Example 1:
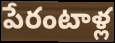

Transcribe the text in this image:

పేరంటాళ్ల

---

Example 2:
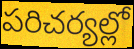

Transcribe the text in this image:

పరిచర్యల్లో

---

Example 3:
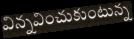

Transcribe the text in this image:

విన్నవించుకుంటున్న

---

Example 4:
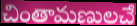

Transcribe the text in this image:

చింతామణులచే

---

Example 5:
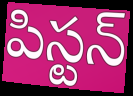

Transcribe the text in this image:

పిస్టన్